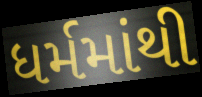
ધર્મમાંથી